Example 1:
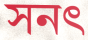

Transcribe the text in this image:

সনৎ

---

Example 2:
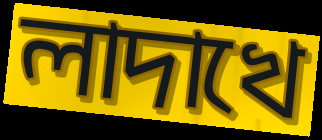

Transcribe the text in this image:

লাদাখে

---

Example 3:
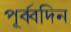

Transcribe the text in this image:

পূর্ব্বদিন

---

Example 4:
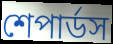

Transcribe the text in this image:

শেপার্ডস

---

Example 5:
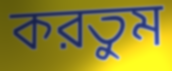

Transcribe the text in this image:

করতুম